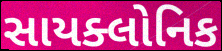
સાયક્લોનિક